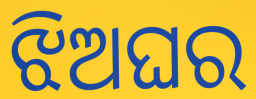
ଝିଅଘର